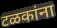
टळकांना